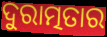
ଦୁରାତ୍ମତାର